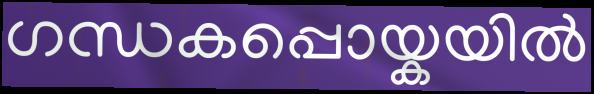
ഗന്ധകപ്പൊയ്കയിൽ